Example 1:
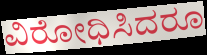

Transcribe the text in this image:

ವಿರೋಧಿಸಿದರೂ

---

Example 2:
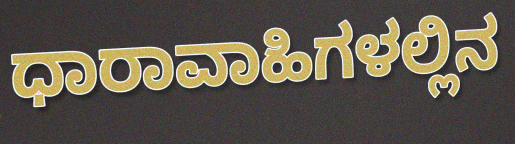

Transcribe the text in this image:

ಧಾರಾವಾಹಿಗಳಲ್ಲಿನ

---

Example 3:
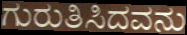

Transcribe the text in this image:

ಗುರುತಿಸಿದವನು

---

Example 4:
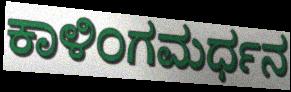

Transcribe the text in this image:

ಕಾಳಿಂಗಮರ್ಧನ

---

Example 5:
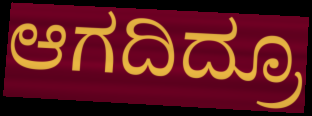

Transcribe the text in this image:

ಆಗದಿದ್ರೂ